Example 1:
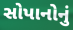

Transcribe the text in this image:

સોપાનોનું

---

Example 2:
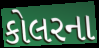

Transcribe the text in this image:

કોલરના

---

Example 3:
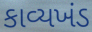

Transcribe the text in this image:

કાવ્યખંડ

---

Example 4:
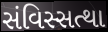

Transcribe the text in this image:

સંવિસ્સત્થા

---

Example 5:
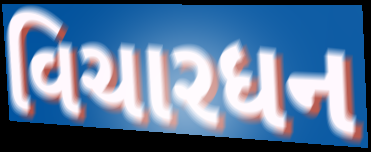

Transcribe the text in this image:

વિચારધન